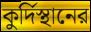
কুর্দিস্থানের